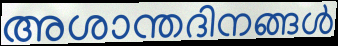
അശാന്തദിനങ്ങൾ